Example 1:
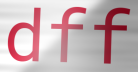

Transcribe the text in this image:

dff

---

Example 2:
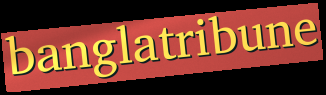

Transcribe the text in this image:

banglatribune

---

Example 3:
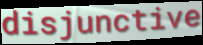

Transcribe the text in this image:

disjunctive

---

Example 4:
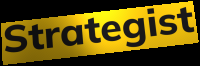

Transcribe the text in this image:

Strategist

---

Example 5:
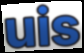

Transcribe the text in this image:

uis